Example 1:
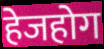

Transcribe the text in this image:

हेजहोग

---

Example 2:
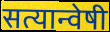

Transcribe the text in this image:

सत्यान्वेषी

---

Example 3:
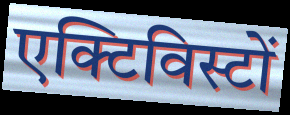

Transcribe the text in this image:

एक्टिविस्टों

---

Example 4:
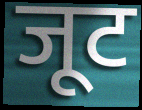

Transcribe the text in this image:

जूट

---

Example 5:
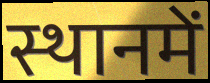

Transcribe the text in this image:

स्थानमें